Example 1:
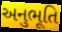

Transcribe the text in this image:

અનુભૂતિ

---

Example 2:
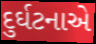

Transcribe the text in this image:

દુર્ઘટનાએ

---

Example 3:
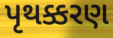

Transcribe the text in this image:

પૃથક્કરણ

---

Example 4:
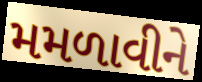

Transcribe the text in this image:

મમળાવીને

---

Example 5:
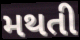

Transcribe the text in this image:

મથતી